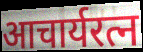
आचार्यरत्न